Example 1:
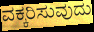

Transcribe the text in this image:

ವಕ್ಕರಿಸುವುದು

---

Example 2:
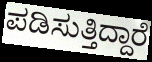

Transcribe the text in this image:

ಪಡಿಸುತ್ತಿದ್ದಾರೆ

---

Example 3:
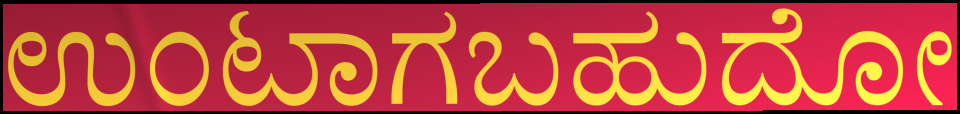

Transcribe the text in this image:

ಉಂಟಾಗಬಹುದೋ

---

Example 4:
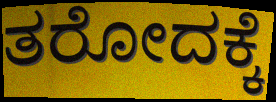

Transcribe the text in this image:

ತರೋದಕ್ಕೆ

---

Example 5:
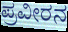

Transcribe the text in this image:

ಪ್ರವೀರನ